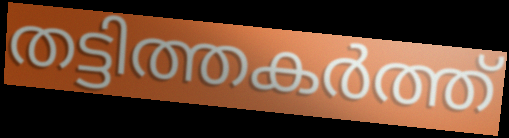
തട്ടിത്തകർത്ത്